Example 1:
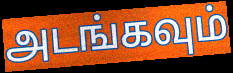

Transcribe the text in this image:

அடங்கவும்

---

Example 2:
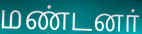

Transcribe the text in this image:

மண்டனர்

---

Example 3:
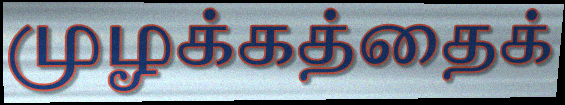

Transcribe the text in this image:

முழக்கத்தைக்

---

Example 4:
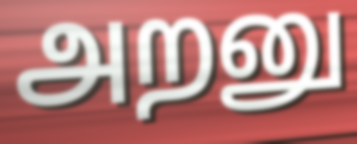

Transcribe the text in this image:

அறனு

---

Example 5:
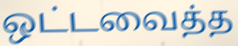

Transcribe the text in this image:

ஒட்டவைத்த